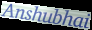
Anshubhai